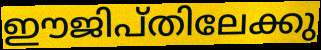
ഈജിപ്തിലേക്കു